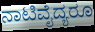
ನಾಟಿವೈದ್ಯರೂ